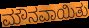
ಮೌನವಾಯಿತು